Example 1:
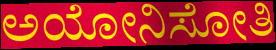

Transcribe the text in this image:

ಅಯೋನಿಸೋತಿ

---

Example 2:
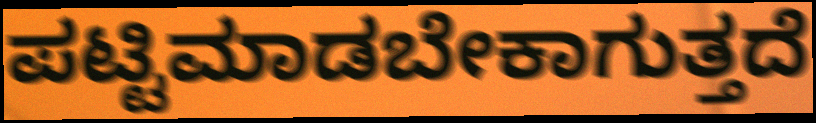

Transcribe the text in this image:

ಪಟ್ಟಿಮಾಡಬೇಕಾಗುತ್ತದೆ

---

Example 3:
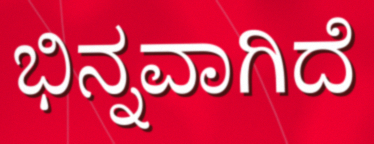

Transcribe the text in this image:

ಭಿನ್ನವಾಗಿದೆ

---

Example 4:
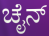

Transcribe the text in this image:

ಚೈನ್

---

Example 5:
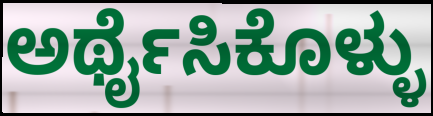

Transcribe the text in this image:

ಅರ್ಥೈಸಿಕೊಳ್ಳು